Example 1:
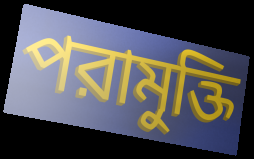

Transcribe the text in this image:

পরামুক্তি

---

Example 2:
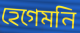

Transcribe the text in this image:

হেগেমনি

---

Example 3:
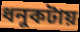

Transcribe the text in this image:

ধনুকটায়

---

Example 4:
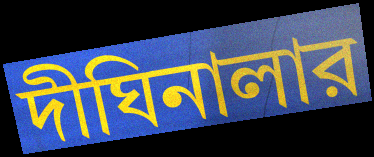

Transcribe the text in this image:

দীঘিনালার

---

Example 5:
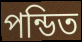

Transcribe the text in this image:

পন্ডিত